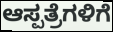
ಆಸ್ಪತ್ರೆಗಳಿಗೆ